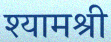
श्यामश्री